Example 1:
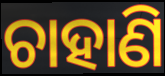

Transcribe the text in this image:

ଚାହାଣି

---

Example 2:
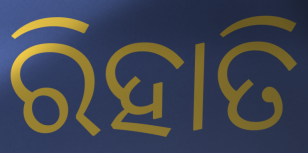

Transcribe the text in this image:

ରିହାତି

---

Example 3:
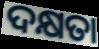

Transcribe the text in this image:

ଦକ୍ଷତା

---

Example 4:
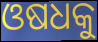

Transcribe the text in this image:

ଓଷଧକୁ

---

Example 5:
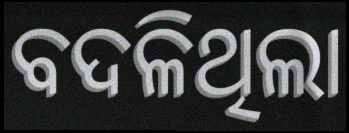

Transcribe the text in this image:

ବଦଳିଥିଲା